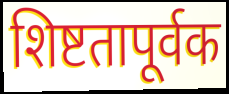
शिष्टतापूर्वक